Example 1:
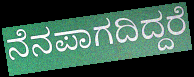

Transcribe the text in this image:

ನೆನಪಾಗದಿದ್ದರೆ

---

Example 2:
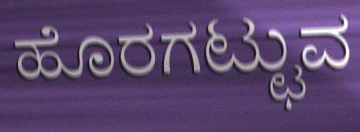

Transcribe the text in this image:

ಹೊರಗಟ್ಟುವ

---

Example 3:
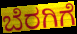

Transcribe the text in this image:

ಬೆರಗಿಗೆ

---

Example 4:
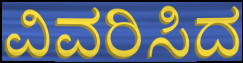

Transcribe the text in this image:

ವಿವರಿಸಿದ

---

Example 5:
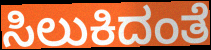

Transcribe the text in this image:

ಸಿಲುಕಿದಂತೆ